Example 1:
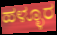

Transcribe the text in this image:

ಹಳ್ಳೂರ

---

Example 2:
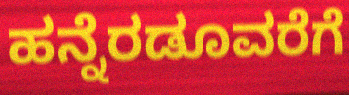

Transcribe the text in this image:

ಹನ್ನೆರಡೂವರೆಗೆ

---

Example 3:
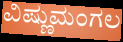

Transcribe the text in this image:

ವಿಷ್ಣುಮಂಗಲ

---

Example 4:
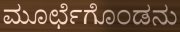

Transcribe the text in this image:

ಮೂರ್ಛೆಗೊಂಡನು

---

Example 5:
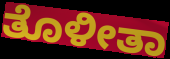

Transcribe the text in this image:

ತೊಳೀತಾ